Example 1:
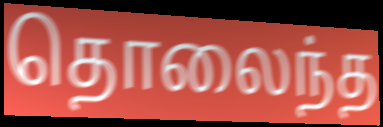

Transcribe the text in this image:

தொலைந்த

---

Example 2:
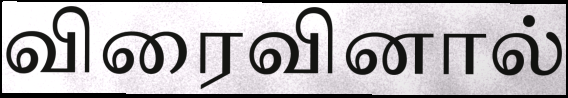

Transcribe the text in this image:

விரைவினால்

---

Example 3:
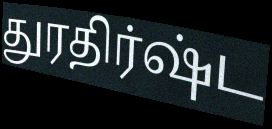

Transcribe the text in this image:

துரதிர்ஷ்ட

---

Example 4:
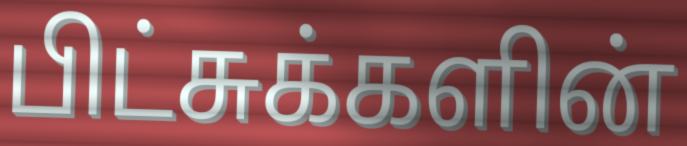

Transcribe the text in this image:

பிட்சுக்களின்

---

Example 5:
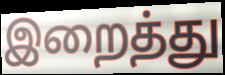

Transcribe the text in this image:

இறைத்து